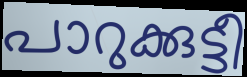
പാറുക്കുട്ടീ